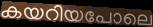
കയറിയപോലെ